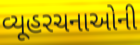
વ્યૂહરચનાઓની